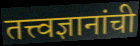
तत्त्वज्ञानांची